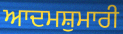
ਆਦਮਸ਼ੁਮਾਰੀ